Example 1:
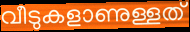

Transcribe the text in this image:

വീടുകളാണുള്ളത്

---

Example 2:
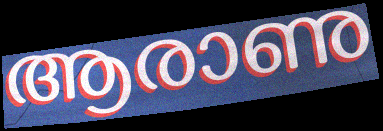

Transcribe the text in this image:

ആരാണു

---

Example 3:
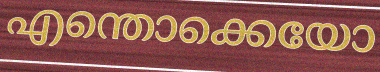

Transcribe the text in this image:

എന്തൊക്കെയോ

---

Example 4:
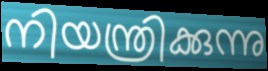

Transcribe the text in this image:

നിയന്ത്രിക്കുന്നു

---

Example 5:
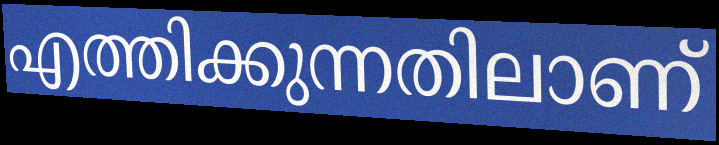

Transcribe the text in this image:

എത്തിക്കുന്നതിലാണ്